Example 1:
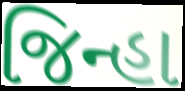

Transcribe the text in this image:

જિન્હા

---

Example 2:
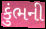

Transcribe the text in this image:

કુંભની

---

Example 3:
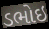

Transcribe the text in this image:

ડભોઇ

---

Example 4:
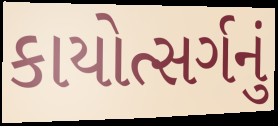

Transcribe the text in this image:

કાયોત્સર્ગનું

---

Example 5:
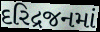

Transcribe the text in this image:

દરિદ્રજનમાં